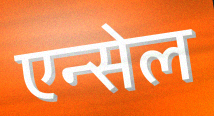
एन्सेल